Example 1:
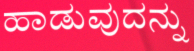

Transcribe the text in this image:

ಹಾಡುವುದನ್ನು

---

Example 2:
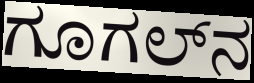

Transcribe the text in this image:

ಗೂಗಲ್‌ನ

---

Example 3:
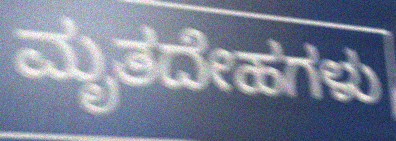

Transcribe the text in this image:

ಮೃತದೇಹಗಳು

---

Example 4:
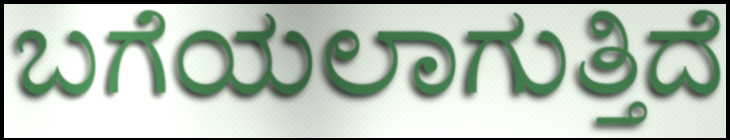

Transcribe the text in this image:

ಬಗೆಯಲಾಗುತ್ತಿದೆ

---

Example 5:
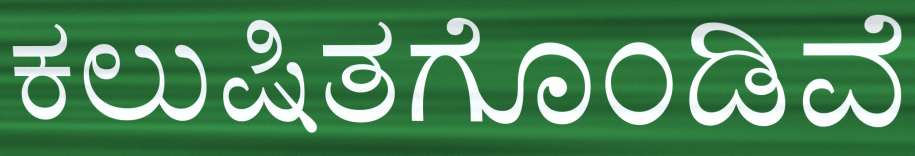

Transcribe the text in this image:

ಕಲುಷಿತಗೊಂಡಿವೆ